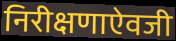
निरीक्षणाऐवजी